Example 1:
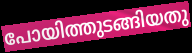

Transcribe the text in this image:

പോയിത്തുടങ്ങിയതു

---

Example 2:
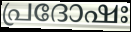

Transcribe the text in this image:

പ്രദോഷഃ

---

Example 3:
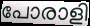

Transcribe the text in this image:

പോരാളി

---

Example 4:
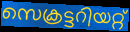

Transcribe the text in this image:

സെക്രട്ടറിയറ്റ്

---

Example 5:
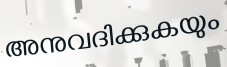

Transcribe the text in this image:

അനുവദിക്കുകയും